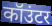
कॉउंटर